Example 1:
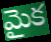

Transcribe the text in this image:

మైక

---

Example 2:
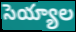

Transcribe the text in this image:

సెయ్యాల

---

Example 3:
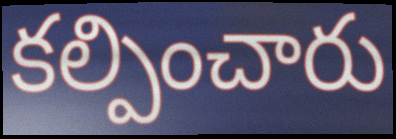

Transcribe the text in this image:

కల్పించారు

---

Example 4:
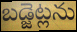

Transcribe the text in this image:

బడ్జెట్లను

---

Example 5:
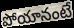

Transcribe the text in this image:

పోయానంటే